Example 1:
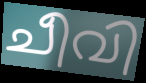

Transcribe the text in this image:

ചീവി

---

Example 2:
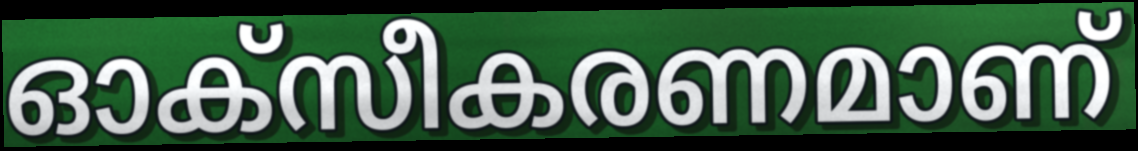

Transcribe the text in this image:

ഓക്സീകരണമാണ്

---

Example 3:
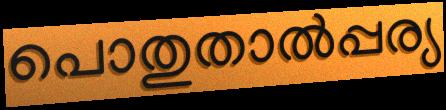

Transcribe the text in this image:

പൊതുതാൽപ്പര്യ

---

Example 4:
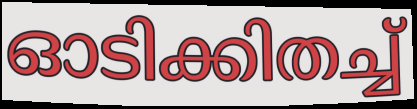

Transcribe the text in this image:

ഓടിക്കിതച്ച്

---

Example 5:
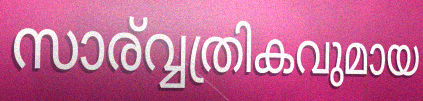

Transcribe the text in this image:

സാര്വ്വത്രികവുമായ